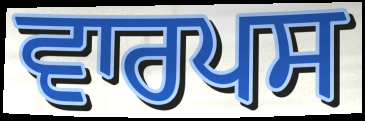
ਵਾਰਪਸ